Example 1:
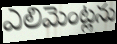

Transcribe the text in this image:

ఎలిమెంట్లను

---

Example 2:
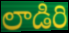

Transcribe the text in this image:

లాడిరి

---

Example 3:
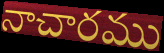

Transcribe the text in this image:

నాచారము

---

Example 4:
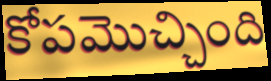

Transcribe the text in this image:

కోపమొచ్చింది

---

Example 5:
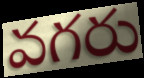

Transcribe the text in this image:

వగరు